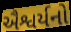
ઐશ્વર્યનો